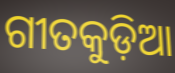
ଗୀତକୁଡ଼ିଆ